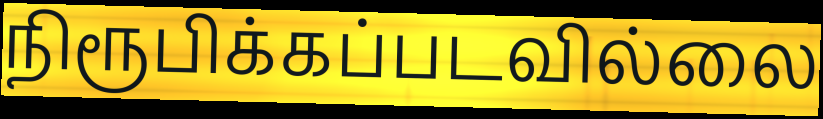
நிரூபிக்கப்படவில்லை